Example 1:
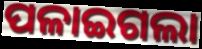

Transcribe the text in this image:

ପଳାଇଗଲା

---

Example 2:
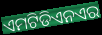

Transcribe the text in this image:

ଏମଟିଡିଏନଏର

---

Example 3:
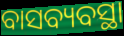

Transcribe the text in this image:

ବାସବ୍ୟବସ୍ଥା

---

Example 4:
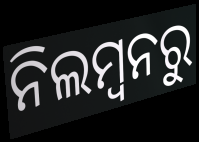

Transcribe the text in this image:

ନିଲମ୍ବନରୁ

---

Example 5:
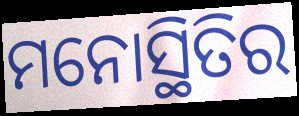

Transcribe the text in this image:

ମନୋସ୍ଥିତିର